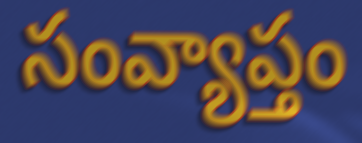
సంవ్యాప్తం